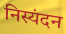
निस्यंदन